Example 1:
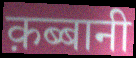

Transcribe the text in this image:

क़ब्बानी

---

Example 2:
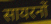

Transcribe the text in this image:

सायरनों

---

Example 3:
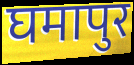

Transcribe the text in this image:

घमापुर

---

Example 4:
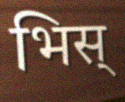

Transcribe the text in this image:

भिस्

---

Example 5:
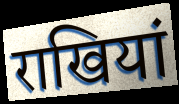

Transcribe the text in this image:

राखियां